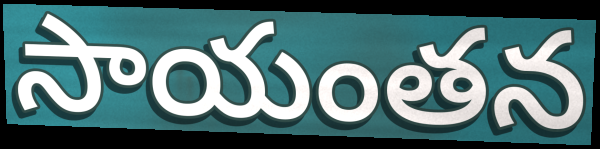
సాయంతన